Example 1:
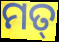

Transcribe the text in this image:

ମତ୍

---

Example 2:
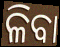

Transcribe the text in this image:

ଳିବା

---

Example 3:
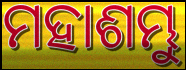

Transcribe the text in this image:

ମହାଶମ୍ଭୁ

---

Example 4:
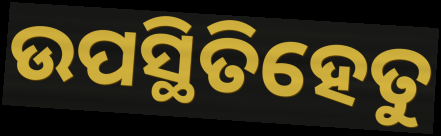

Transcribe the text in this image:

ଉପସ୍ଥିତିହେତୁ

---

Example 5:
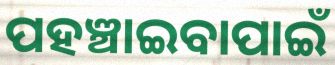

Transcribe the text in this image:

ପହଞ୍ଚାଇବାପାଇଁ